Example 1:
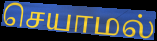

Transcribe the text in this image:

செயாமல்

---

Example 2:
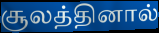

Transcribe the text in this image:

சூலத்தினால்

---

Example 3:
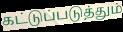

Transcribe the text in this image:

கட்டுப்படுத்தும்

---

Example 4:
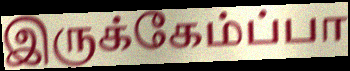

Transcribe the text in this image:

இருக்கேம்ப்பா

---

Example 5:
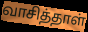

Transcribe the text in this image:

வாசித்தாள்